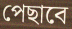
পেছাবে